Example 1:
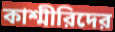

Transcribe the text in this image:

কাশ্মীরিদের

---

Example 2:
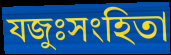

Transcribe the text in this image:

যজুঃসংহিতা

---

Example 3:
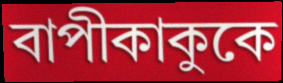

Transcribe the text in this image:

বাপীকাকুকে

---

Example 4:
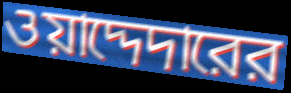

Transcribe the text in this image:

ওয়াদ্দেদারের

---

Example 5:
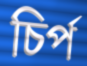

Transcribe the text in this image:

চির্প